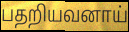
பதறியவனாய்